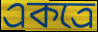
একত্ৰে